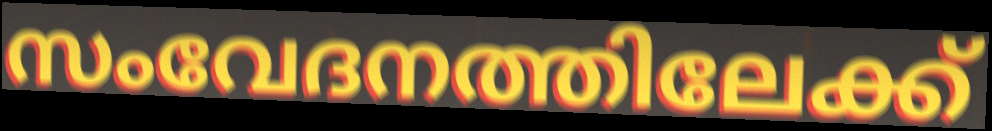
സംവേദനത്തിലേക്ക്